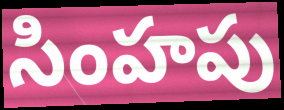
సింహపు